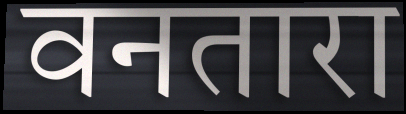
वनतारा